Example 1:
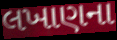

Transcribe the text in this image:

લખાણના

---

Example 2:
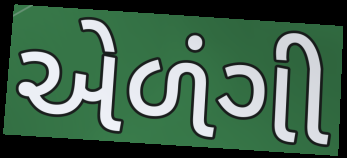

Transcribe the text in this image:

એળંગી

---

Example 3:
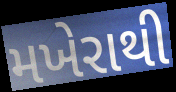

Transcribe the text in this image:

મખેરાથી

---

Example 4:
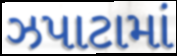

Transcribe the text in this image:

ઝપાટામાં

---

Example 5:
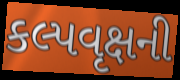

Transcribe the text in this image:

કલ્પવૃક્ષની